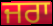
ਜਰਾ